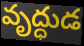
వృద్ధుడ